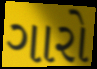
ગારો